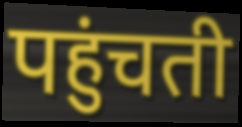
पहुंचती